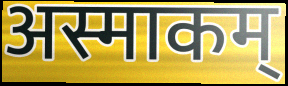
अस्माकम्